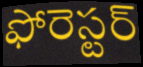
ఫోరెస్టర్